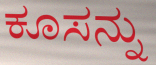
ಕೂಸನ್ನು